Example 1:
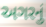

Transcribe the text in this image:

અગરનું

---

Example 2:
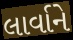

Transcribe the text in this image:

લાર્વાને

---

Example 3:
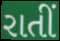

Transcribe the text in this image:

રાતીં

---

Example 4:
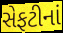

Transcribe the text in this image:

સેફટીનાં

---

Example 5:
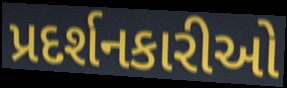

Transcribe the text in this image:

પ્રદર્શનકારીઓ